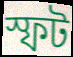
স্ফট